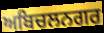
ਅਬਿਚਲਨਗਰ